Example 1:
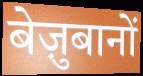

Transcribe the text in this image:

बेज़ुबानों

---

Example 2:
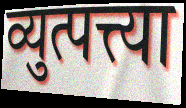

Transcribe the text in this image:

व्युत्पत्त्या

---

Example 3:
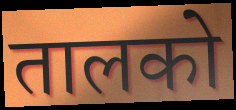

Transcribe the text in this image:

तालको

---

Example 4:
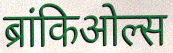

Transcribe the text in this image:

ब्रांकिओल्स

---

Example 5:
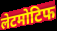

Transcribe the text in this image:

लेटमोटिफ